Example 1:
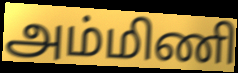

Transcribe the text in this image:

அம்மிணி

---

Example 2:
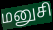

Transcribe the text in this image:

மனுசி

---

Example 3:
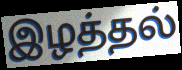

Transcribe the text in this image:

இழத்தல்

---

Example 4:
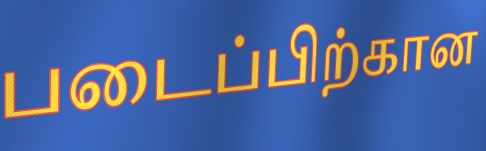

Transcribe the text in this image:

படைப்பிற்கான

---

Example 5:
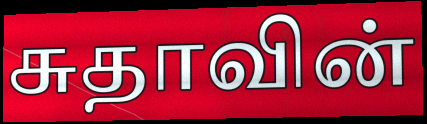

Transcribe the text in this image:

சுதாவின்